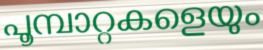
പൂമ്പാറ്റകളെയും